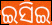
ଇସିଇ